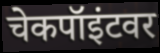
चेकपॉइंटवर